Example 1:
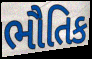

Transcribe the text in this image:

ભૌતિક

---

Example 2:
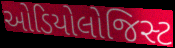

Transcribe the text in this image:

ઓડિયોલોજિસ્ટ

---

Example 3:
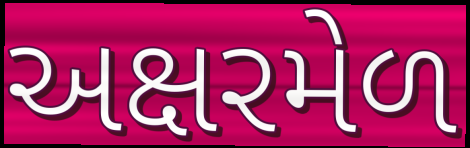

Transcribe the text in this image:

અક્ષરમેળ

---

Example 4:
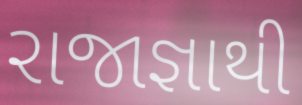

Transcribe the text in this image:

રાજાજ્ઞાથી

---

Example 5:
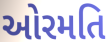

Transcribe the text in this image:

ઓરમતિ